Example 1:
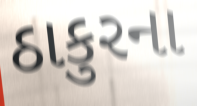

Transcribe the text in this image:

ઠાકુરના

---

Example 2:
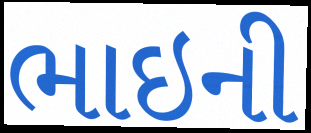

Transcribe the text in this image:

ભાઇની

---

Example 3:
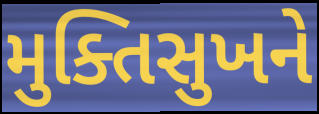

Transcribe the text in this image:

મુક્તિસુખને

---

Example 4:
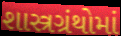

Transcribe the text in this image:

શાસ્ત્રગ્રંથોમાં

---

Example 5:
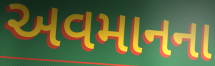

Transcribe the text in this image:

અવમાનના